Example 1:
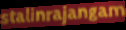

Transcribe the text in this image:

stalinrajangam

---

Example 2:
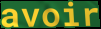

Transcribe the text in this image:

avoir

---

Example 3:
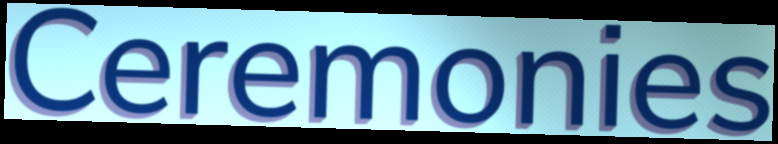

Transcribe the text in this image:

Ceremonies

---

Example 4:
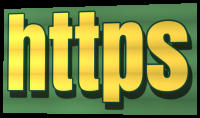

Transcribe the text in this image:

https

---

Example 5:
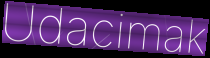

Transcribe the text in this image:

Udacimak